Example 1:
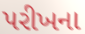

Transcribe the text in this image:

પરીખના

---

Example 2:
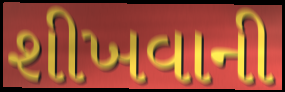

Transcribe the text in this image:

શીખવાની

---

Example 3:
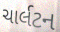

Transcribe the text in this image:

ચાર્લટન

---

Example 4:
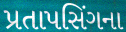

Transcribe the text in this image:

પ્રતાપસિંગના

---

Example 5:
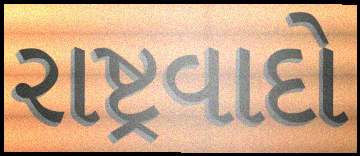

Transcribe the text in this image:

રાષ્ટ્રવાદો